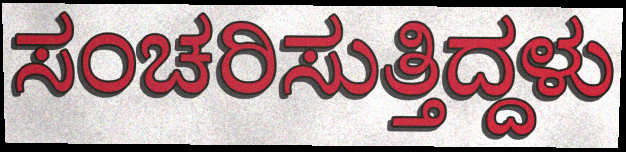
ಸಂಚರಿಸುತ್ತಿದ್ದಳು